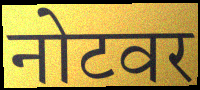
नोटवर